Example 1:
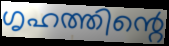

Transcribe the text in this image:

ഗൃഹത്തിന്റെ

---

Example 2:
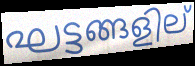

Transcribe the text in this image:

ഘട്ടങ്ങളില്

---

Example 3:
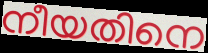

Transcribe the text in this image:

നീയതിനെ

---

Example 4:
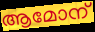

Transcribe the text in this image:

ആമോന്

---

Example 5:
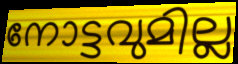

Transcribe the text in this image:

നോട്ടവുമില്ല